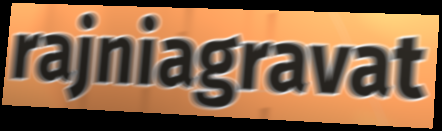
rajniagravat